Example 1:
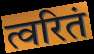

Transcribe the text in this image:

त्वरितं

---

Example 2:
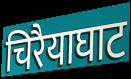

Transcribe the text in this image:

चिरैयाघाट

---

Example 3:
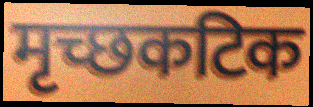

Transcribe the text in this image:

मृच्छकटिक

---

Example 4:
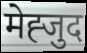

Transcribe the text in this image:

मेह्जुद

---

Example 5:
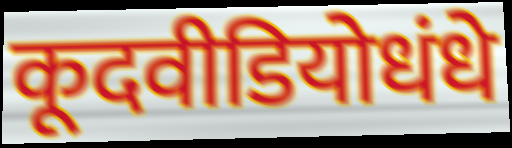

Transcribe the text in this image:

कूदवीडियोधंधे